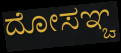
ದೋಸಞ್ಚ